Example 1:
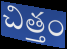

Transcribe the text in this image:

చిత్తం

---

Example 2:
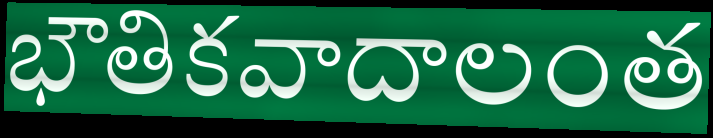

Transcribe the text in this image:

భౌతికవాదాలంత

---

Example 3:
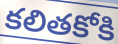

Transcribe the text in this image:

కలితకోకి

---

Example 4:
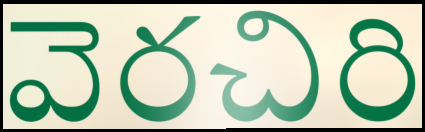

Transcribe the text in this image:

వెరచిరి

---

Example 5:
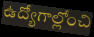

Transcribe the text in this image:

ఉద్యోగాల్లోంచి